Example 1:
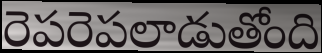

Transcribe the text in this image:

రెపరెపలాడుతోంది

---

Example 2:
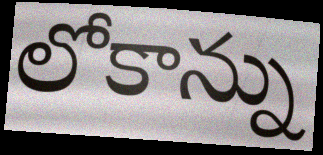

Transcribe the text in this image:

లోకాన్ను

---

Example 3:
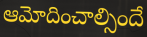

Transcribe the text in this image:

ఆమోదించాల్సిందే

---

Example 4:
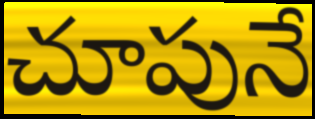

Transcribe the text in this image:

చూపునే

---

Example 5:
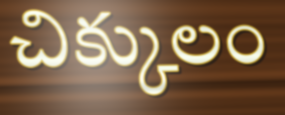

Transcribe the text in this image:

చిక్కులం